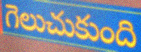
గెలుచుకుంది